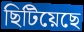
ছিটিয়েছে